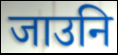
जाउनि